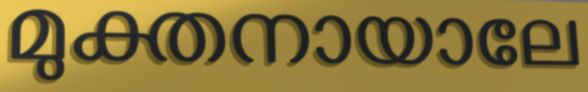
മുക്തനായാലേ